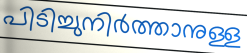
പിടിച്ചുനിർത്താനുള്ള